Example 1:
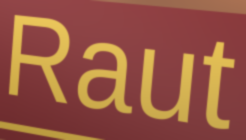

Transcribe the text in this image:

Raut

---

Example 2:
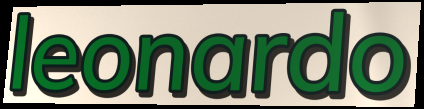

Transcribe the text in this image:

leonardo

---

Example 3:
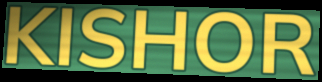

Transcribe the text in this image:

KISHOR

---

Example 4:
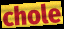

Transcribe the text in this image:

chole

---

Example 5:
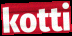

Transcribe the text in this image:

kotti